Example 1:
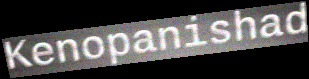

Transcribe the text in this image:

Kenopanishad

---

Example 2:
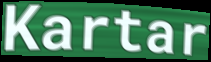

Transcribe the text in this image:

Kartar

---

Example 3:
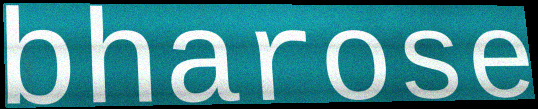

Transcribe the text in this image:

bharose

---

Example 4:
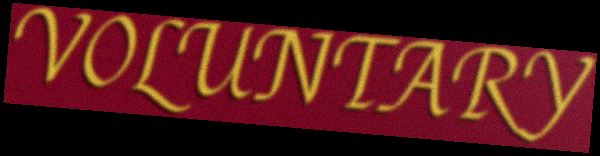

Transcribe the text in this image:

VOLUNTARY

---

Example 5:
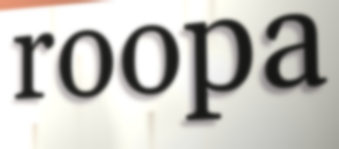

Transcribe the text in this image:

roopa